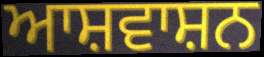
ਆਸ਼ਵਾਸ਼ਨ